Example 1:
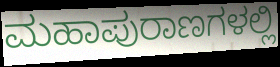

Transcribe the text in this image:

ಮಹಾಪುರಾಣಗಳಲ್ಲಿ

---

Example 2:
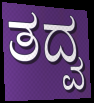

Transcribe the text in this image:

ತದ್ವ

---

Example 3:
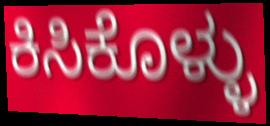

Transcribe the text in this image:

ಕಿಸಿಕೊಳ್ಳು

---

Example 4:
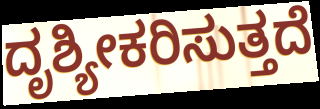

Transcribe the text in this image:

ದೃಶ್ಯೀಕರಿಸುತ್ತದೆ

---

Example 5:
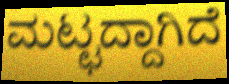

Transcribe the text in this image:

ಮಟ್ಟದ್ದಾಗಿದೆ